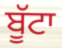
ਬੂੱਟਾ